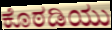
ಕೊಠಡಿಯು